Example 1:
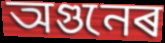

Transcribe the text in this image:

অগুনেৰ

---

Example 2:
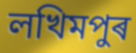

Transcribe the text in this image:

লখিমপুৰ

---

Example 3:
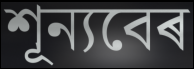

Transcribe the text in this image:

শূন্যবেৰ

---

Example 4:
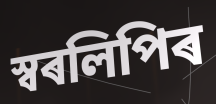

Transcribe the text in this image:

স্বৰলিপিৰ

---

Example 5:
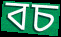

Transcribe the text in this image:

বচ